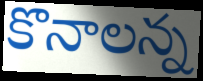
కొనాలన్న